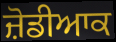
ਜ਼ੋਡੀਆਕ